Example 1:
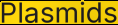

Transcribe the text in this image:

Plasmids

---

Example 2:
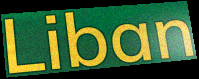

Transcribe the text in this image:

Liban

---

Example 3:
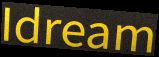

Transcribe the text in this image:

Idream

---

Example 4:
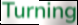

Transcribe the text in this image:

Turning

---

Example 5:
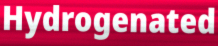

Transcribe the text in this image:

Hydrogenated